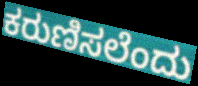
ಕರುಣಿಸಲೆಂದು